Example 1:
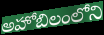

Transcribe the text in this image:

అహోబిలంలోని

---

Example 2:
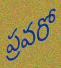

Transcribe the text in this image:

ప్రవరో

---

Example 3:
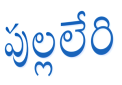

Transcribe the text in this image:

పుల్లలేరి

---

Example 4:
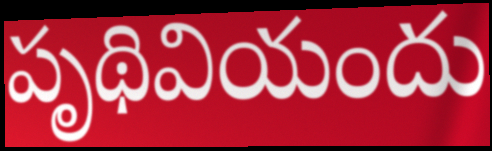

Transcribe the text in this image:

పృథివియందు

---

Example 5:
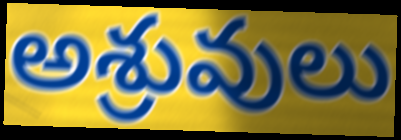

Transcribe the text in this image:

అశ్రువులు